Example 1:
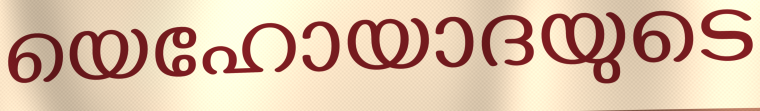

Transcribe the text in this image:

യെഹോയാദയുടെ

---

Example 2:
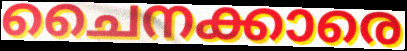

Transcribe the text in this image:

ചൈനക്കാരെ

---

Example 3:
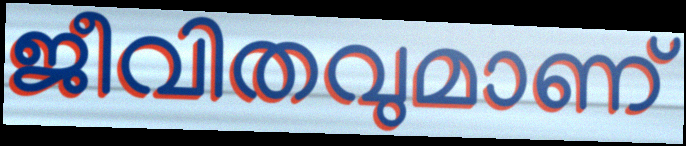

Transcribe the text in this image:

ജീവിതവുമാണ്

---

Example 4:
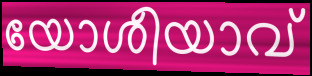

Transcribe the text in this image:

യോശീയാവ്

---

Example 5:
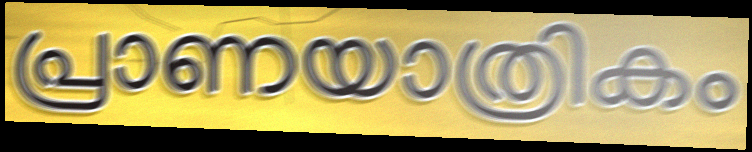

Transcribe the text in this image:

പ്രാണയാത്രികം